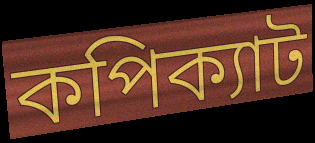
কপিক্যাট